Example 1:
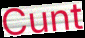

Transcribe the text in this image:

Cunt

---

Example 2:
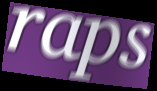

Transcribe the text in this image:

raps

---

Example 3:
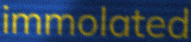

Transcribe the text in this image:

immolated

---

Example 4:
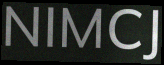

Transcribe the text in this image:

NIMCJ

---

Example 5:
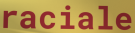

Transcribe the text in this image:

raciale